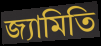
জ্যামিতি